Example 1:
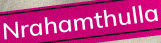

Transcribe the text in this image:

Nrahamthulla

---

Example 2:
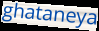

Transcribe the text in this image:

ghataneya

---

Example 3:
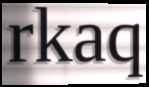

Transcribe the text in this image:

rkaq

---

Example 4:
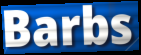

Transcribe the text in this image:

Barbs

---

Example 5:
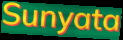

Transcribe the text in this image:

Sunyata